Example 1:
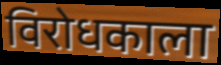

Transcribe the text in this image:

विरोधकाला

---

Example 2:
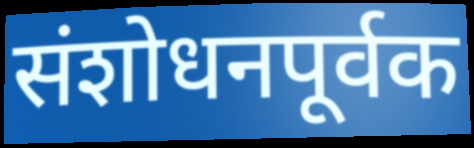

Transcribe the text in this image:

संशोधनपूर्वक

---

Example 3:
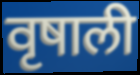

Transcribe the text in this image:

वृषाली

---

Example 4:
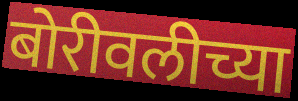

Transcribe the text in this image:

बोरीवलीच्या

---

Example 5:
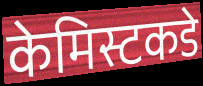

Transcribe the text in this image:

केमिस्टकडे